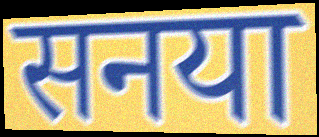
सनया